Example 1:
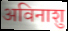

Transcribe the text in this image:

अविनाशु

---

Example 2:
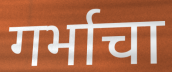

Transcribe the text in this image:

गर्भाचा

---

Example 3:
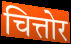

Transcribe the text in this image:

चित्तोर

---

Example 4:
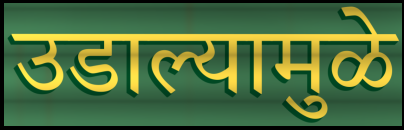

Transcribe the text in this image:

उडाल्यामुळे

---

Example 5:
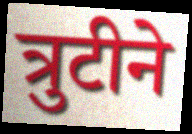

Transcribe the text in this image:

त्रुटीने